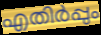
എതിർപ്പും